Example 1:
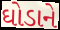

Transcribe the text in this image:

ઘોડાને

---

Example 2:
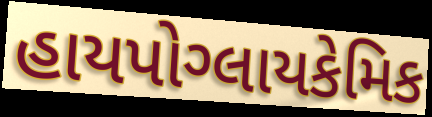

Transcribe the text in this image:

હાયપોગ્લાયકેમિક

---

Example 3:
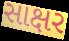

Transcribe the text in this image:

સાક્ષર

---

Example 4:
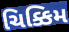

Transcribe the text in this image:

ચિક્કિમ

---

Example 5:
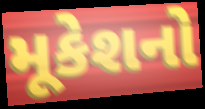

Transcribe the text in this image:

મૂકેશનો